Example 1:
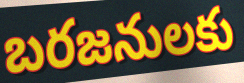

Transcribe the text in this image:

బరజనులకు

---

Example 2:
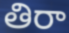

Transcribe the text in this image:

తిరా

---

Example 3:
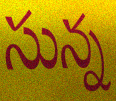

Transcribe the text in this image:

సున్న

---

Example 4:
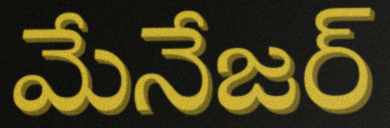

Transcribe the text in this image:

మేనేజర్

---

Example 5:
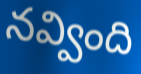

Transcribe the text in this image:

నవ్వింది